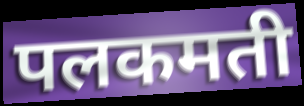
पलकमती